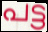
പട്ട